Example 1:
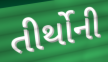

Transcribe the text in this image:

તીર્થોની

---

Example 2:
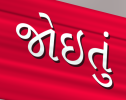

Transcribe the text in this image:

જોઇતું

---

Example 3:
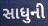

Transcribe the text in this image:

સાધુની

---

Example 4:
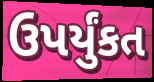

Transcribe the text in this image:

ઉપર્યુંકત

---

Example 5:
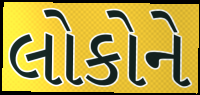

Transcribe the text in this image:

લોકોને